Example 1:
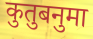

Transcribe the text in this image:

कुतुबनुमा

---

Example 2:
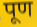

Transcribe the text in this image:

पूण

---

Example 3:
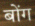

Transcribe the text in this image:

बोंग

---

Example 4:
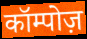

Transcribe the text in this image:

कॉम्पोज़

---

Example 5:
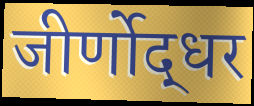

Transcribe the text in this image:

जीर्णोद्धर